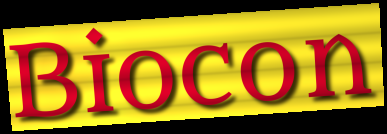
Biocon